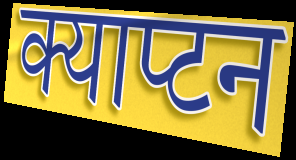
क्याप्टन